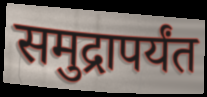
समुद्रापर्यंत